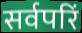
सर्वपरिं